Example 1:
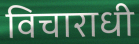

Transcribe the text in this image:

विचाराधी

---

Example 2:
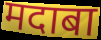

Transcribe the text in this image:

मदाबा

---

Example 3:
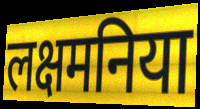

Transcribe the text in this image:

लक्षमनिया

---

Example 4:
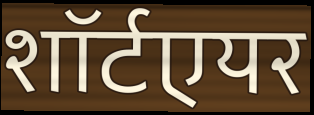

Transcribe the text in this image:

शॉर्टएयर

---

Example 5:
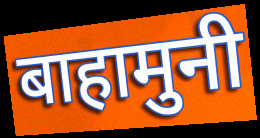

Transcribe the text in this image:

बाहामुनी